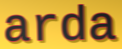
arda